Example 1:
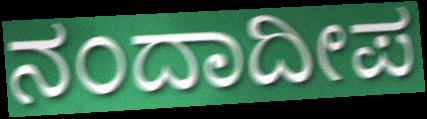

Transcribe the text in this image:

ನಂದಾದೀಪ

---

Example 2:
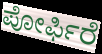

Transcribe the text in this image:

ಪೋರ್ಫಿರೆ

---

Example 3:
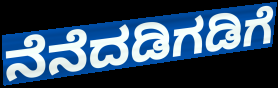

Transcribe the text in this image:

ನೆನೆದಡಿಗಡಿಗೆ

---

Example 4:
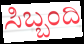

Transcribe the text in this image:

ಸಿಬ್ಬಂದಿ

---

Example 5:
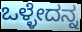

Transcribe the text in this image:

ಒಳ್ಳೇದನ್ನ